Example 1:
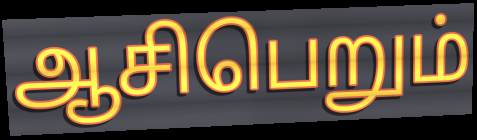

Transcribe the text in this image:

ஆசிபெறும்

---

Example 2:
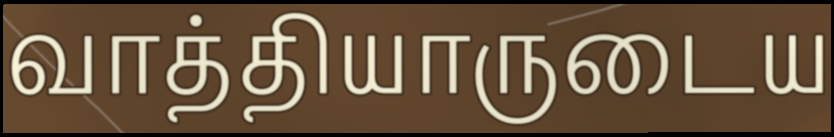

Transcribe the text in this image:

வாத்தியாருடைய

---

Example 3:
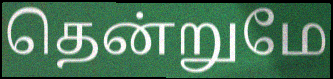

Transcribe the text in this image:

தென்றுமே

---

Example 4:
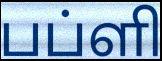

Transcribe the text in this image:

பப்ளி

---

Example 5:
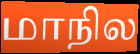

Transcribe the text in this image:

மாநில